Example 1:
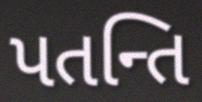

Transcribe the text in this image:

પતન્તિ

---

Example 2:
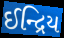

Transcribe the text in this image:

ઈન્દ્રિય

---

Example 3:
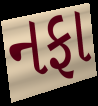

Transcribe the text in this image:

નફા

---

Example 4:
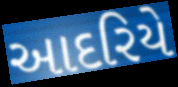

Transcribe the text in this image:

આદરિયે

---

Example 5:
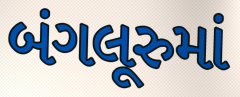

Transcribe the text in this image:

બંગલૂરુમાં